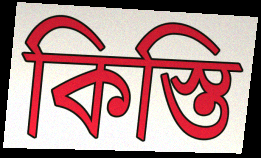
কিস্তি